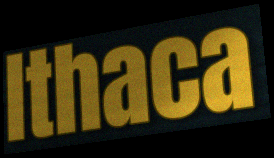
Ithaca